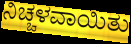
ನಿಚ್ಚಳವಾಯಿತು